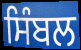
ਸਿੰਬਲ